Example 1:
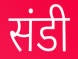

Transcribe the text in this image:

संडी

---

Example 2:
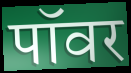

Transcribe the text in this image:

पॉवर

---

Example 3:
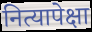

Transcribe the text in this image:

नित्यापेक्षा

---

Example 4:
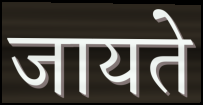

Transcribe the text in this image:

जायते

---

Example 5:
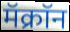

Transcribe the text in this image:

मॅक्रॉन